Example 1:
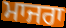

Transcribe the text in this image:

ਮਾਜਰਾ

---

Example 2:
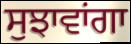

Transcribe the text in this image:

ਸੁਝਾਵਾਂਗਾ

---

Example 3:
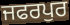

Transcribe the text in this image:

ਜਫਰਪੁਰ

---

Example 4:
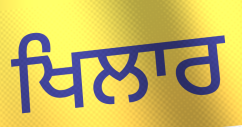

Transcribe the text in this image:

ਖਿਲਾਰ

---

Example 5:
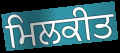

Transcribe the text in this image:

ਮਿਲਕੀਤ